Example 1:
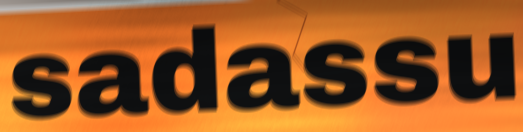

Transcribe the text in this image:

sadassu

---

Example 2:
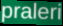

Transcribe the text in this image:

praleri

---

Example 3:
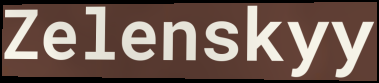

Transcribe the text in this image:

Zelenskyy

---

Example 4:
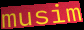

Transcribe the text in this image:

musim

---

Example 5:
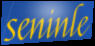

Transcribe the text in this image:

seninle